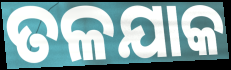
ତଳଯାକ